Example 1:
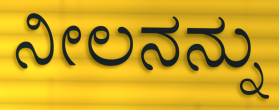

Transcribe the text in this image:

ನೀಲನನ್ನು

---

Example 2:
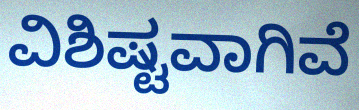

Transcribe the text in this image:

ವಿಶಿಷ್ಟವಾಗಿವೆ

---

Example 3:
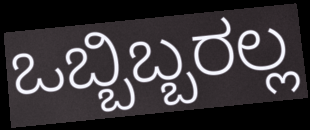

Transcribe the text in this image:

ಒಬ್ಬಿಬ್ಬರಲ್ಲ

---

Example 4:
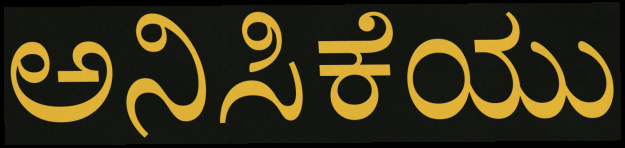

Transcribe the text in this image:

ಅನಿಸಿಕೆಯು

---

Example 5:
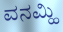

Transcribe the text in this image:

ವನಮ್ಹಿ